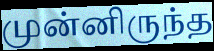
முன்னிருந்த